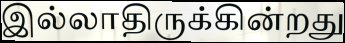
இல்லாதிருக்கின்றது